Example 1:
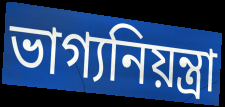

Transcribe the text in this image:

ভাগ্যনিয়ন্ত্রা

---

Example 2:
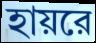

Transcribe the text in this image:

হায়রে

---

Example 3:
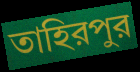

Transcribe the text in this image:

তাহিরপুর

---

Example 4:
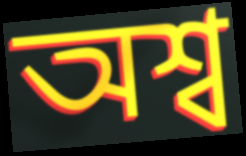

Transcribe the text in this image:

অশ্ব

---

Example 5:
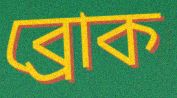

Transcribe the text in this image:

ব্রোক